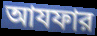
আযফার